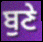
ਬੁਣੇ